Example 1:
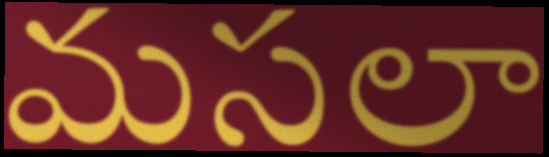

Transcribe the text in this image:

మసలా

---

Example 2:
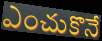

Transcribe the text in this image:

ఎంచుకొనే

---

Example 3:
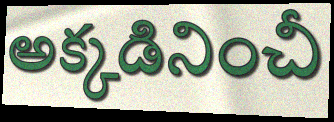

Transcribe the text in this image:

అక్కడినించీ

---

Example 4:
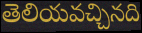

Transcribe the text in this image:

తెలియవచ్చినది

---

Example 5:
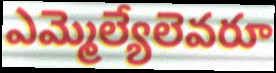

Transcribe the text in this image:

ఎమ్మెల్యేలెవరూ